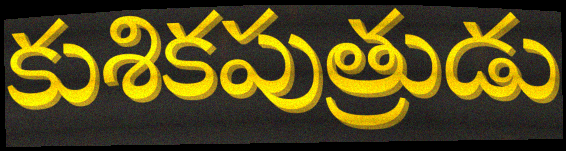
కుశికపుత్రుడు